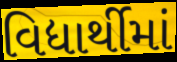
વિદ્યાર્થીમાં